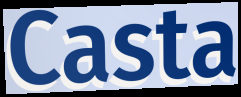
Casta